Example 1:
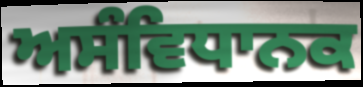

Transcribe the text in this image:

ਅਸੰਵਿਧਾਨਕ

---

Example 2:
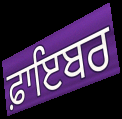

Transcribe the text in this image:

ਫ਼ਾਇਬਰ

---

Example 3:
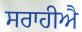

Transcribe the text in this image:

ਸਰਾਹੀਐ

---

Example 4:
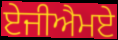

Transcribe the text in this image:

ਏਜੀਐਮਏ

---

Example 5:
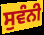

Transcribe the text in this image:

ਸੁਵੰਨੀ